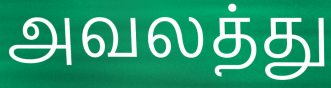
அவலத்து